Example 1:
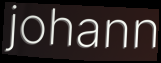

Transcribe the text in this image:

johann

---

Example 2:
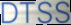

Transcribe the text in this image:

DTSS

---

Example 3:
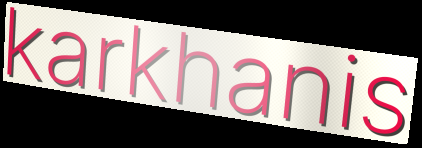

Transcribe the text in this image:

karkhanis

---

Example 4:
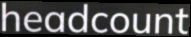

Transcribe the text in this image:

headcount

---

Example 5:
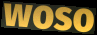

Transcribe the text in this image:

woso